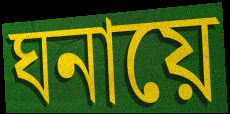
ঘনায়ে